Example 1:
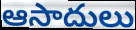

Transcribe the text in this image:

ఆసాదులు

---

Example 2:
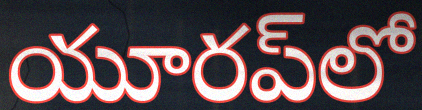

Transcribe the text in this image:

యూరప్‌లో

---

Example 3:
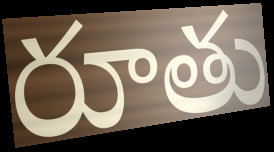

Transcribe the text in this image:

రూతు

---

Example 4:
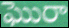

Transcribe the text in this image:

ఘొరా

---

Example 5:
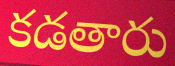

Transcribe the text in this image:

కడతారు